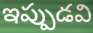
ఇప్పుడవి